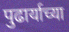
पुढार्याच्या